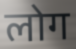
लोग